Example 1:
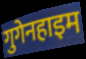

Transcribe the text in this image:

गुगेनहाइम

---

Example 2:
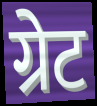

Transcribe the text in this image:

ग्रेट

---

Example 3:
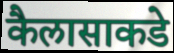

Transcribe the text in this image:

कैलासाकडे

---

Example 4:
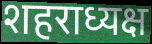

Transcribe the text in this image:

शहराध्यक्ष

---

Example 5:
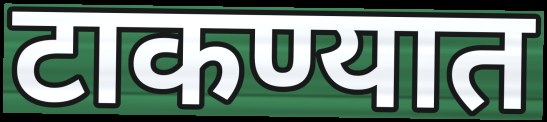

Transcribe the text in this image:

टाकण्यात